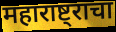
महाराष्ट्राचा